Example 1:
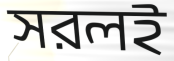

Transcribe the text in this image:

সরলই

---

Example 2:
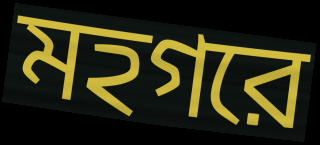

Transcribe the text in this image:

মহগরে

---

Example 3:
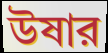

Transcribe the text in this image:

উষার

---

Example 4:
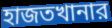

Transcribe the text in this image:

হাজতখানার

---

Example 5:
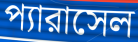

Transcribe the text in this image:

প্যারাসেল